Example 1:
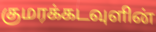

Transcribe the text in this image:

குமரக்கடவுளின்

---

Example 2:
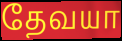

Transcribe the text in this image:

தேவயா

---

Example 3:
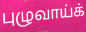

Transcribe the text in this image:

புழுவாய்க்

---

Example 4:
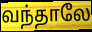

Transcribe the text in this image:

வந்தாலே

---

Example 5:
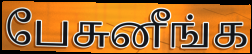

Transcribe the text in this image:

பேசுனீங்க